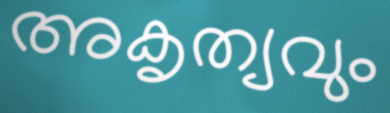
അകൃത്യവും